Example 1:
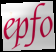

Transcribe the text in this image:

epfo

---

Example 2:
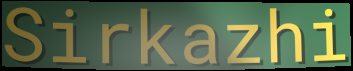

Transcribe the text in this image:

Sirkazhi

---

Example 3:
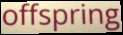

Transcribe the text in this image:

offspring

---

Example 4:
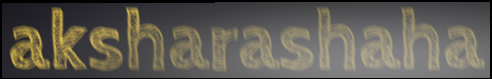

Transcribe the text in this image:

aksharashaha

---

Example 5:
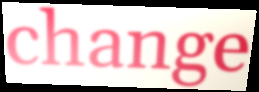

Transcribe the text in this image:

change